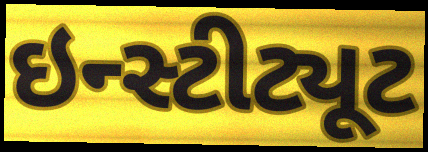
ઇન્સ્ટીટ્યૂટ